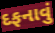
દફનાવું